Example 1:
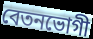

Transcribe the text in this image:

বেতনভোগী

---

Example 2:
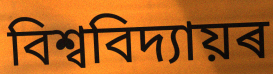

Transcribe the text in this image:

বিশ্ববিদ্যায়ৰ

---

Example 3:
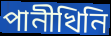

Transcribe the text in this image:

পানীখিনি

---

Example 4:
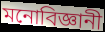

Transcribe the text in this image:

মনোবিজ্ঞানী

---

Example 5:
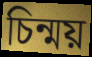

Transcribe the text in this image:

চিন্ময়